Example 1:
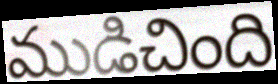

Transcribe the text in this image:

ముడిచింది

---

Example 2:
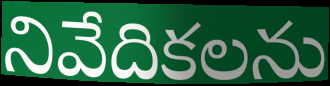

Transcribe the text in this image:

నివేదికలను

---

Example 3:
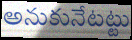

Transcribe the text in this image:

అనుకునేటట్టు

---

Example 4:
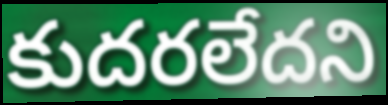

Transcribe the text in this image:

కుదరలేదని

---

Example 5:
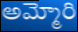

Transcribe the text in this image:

అమ్మోరి